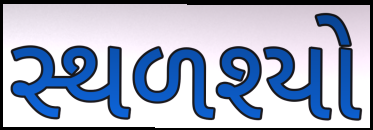
સ્થળશ્યો